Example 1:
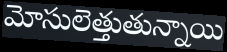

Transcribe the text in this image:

మోసులెత్తుతున్నాయి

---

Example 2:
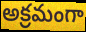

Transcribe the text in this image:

అక్రమంగా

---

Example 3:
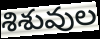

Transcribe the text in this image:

శిశువుల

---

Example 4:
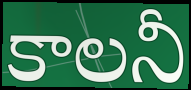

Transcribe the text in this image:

కాలనీ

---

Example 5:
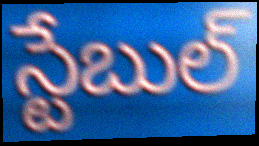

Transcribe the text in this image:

స్టేబుల్